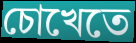
চোখেতে